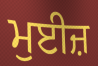
ਮੁਈਜ਼